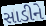
સાડીને